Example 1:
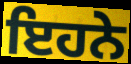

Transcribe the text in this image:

ਇਹਨੇ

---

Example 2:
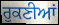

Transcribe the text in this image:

ਰੁਕਣੀਆਂ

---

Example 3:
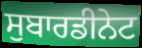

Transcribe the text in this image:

ਸੁਬਾਰਡੀਨੇਟ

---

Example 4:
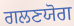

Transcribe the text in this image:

ਗਲਣਯੋਗ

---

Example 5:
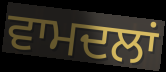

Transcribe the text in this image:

ਵਾਮਦਲਾਂ